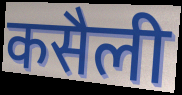
कसैली